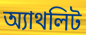
অ্যাথলিট